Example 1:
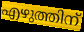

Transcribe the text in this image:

എഴുത്തിന്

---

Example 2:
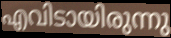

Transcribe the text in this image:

എവിടായിരുന്നു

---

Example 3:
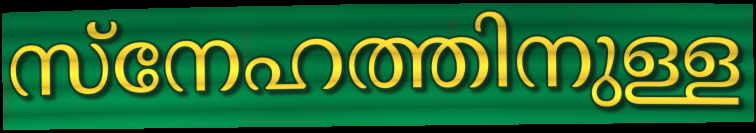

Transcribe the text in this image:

സ്നേഹത്തിനുള്ള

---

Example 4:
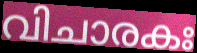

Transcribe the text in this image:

വിചാരകഃ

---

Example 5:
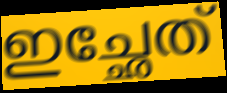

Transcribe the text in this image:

ഇച്ഛേത്